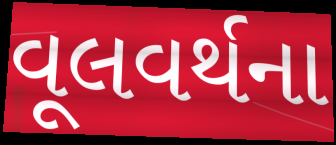
વૂલવર્થના